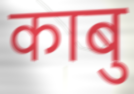
काबु